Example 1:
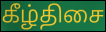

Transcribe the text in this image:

கீழ்திசை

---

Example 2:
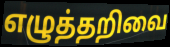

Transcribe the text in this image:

எழுத்தறிவை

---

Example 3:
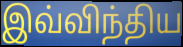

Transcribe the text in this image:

இவ்விந்திய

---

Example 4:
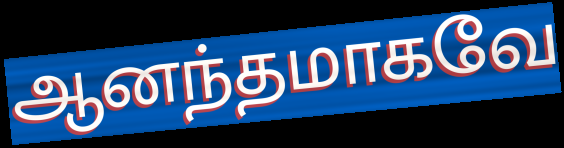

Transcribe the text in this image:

ஆனந்தமாகவே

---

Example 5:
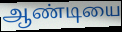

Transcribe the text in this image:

ஆண்டியை